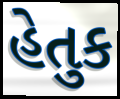
હેતુક